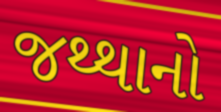
જથ્થાનો